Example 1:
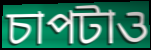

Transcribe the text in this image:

চাপটাও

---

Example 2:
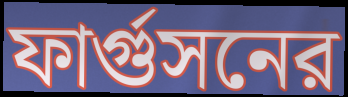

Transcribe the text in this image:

ফার্গুসনের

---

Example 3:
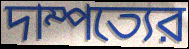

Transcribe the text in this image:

দাম্পত্যের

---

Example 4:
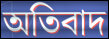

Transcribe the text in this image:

অতিবাদ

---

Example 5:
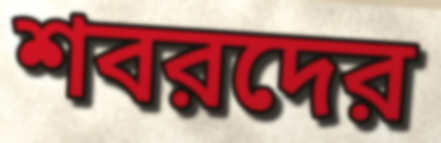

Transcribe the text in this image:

শবরদের